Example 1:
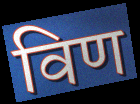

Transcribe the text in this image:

विण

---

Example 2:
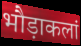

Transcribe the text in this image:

भौड़ाकलां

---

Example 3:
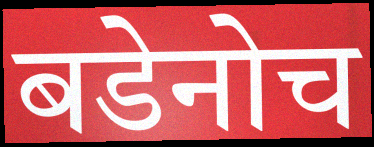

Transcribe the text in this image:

बडेनोच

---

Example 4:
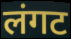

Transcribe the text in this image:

लंगट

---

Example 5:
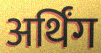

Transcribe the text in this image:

अर्थिंग